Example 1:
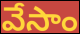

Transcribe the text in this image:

వేసాం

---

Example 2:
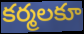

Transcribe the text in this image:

కర్మలకూ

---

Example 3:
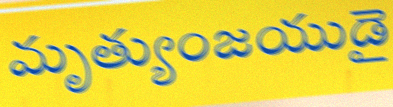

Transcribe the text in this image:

మృత్యుంజయుడై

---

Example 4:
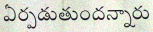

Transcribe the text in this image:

ఏర్పడుతుందన్నారు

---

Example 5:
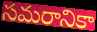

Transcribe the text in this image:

సమరానికా